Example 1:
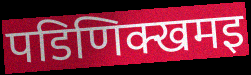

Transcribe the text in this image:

पडिणिक्खमइ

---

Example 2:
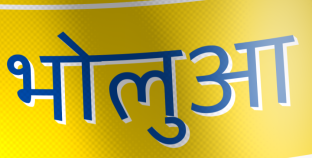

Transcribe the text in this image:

भोलुआ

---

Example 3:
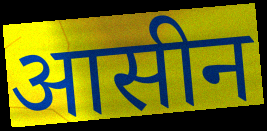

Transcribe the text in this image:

आसीन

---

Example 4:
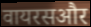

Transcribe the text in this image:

वायरसऔर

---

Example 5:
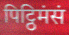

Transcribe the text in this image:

पिट्ठिमंसं